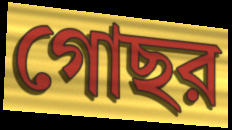
গোছর